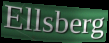
Ellsberg